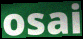
osai